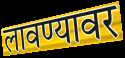
लावण्यावर